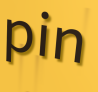
pin